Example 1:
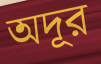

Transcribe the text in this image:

অদূর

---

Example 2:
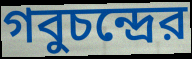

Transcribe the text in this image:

গবুচন্দ্রের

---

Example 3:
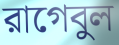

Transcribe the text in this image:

রাগেবুল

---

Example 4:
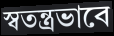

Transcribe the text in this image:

স্বতন্ত্রভাবে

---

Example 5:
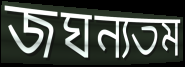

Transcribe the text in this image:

জঘন্যতম